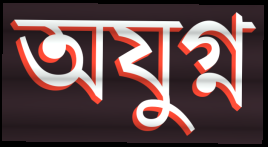
অযুগ্ন